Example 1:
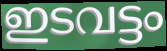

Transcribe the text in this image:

ഇടവട്ടം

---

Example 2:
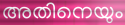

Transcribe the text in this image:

അതിനെയും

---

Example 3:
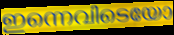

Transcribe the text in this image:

ഇന്നെവിടെയോ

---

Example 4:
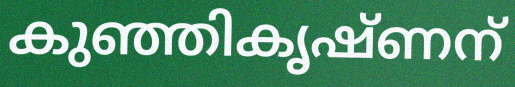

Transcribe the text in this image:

കുഞ്ഞികൃഷ്ണന്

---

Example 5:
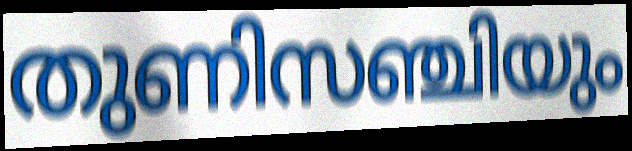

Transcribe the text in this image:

തുണിസഞ്ചിയും